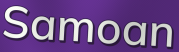
Samoan